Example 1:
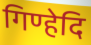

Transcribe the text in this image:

गिण्हेदि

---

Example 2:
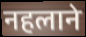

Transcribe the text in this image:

नहलाने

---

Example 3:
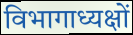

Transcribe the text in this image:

विभागाध्‍यक्षों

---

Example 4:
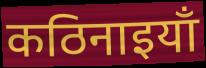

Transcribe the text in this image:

कठिनाइयाँ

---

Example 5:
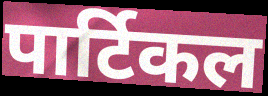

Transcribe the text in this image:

पार्टिकल